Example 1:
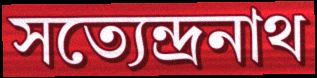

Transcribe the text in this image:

সত্যেন্দ্ৰনাথ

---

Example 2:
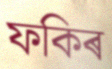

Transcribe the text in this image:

ফকিৰ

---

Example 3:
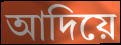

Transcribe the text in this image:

আদিয়ে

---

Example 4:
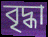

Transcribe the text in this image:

বৃদ্ধা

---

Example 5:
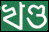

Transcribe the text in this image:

খণ্ড